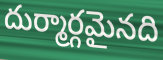
దుర్మార్గమైనది